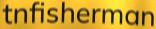
tnfisherman